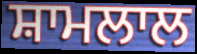
ਸ਼ਾਮਲਾਲ